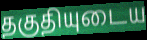
தகுதியுடைய